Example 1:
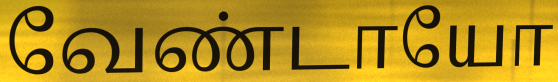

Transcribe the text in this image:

வேண்டாயோ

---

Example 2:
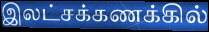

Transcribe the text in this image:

இலட்சக்கணக்கில்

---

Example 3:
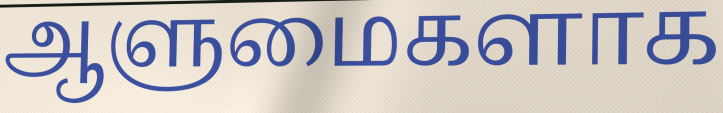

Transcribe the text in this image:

ஆளுமைகளாக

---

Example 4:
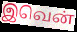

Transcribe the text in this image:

இவென்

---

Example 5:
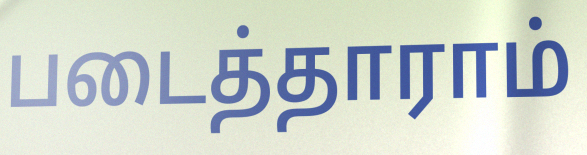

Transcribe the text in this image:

படைத்தாராம்